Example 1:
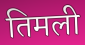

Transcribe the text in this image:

तिमली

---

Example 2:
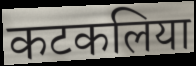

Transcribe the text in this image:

कटकलिया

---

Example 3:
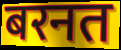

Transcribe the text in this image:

बरनत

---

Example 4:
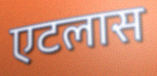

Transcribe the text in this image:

एटलास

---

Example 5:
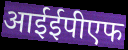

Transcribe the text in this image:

आईईपीएफ